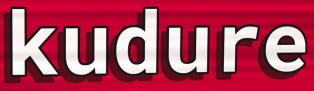
kudure